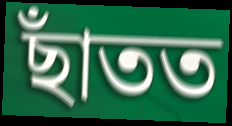
ছাঁতত